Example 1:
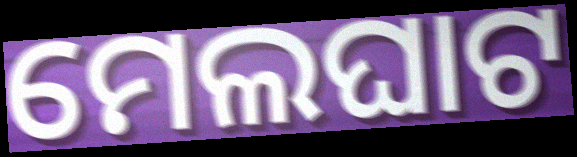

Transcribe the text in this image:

ମେଲଘାଟ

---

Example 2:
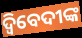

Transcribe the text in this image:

ଦ୍ବିବେଦୀଙ୍କ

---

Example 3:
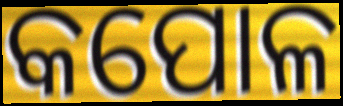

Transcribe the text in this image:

କପୋଳ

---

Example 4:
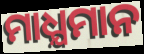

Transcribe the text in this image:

ମାଧ୍ଯମାନ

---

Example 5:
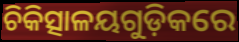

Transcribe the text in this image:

ଚିକିତ୍ସାଳୟଗୁଡ଼ିକରେ